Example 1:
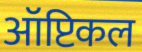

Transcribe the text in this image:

ऑप्टिकल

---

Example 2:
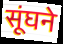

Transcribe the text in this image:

सूंघने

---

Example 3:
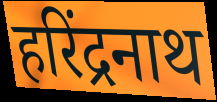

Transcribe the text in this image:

हरिंद्रनाथ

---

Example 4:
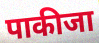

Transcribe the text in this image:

पाकीजा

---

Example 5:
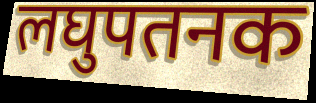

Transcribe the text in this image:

लघुपतनक